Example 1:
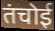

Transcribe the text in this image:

तंचोई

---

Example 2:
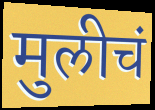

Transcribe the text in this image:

मुलीचं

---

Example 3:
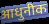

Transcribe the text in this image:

आधुनीक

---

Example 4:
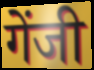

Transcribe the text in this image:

गेंजी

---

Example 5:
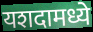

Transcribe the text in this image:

यशदामध्ये